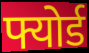
फ्योर्ड